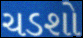
ચડશો